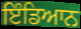
ਇੰਡਿਆਨ